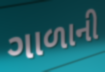
ગાળાની